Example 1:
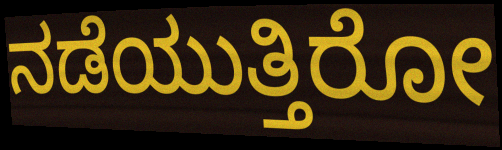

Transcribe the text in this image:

ನಡೆಯುತ್ತಿರೋ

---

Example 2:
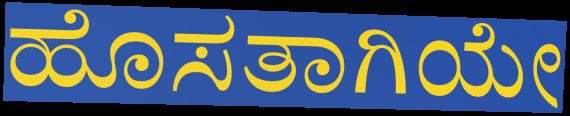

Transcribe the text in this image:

ಹೊಸತಾಗಿಯೇ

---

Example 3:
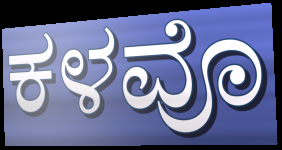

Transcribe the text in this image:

ಕಳವೊ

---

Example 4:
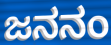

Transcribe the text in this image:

ಜನನಂ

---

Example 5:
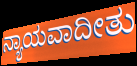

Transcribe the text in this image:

ನ್ಯಾಯವಾದೀತು